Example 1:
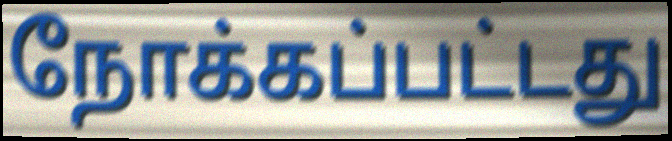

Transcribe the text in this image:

நோக்கப்பட்டது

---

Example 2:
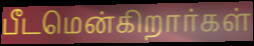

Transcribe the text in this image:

பீடமென்கிறார்கள்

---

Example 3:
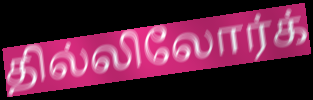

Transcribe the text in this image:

தில்லிலோர்க்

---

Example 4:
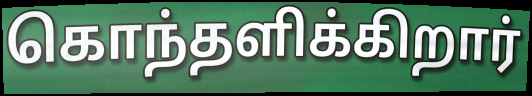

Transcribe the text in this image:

கொந்தளிக்கிறார்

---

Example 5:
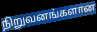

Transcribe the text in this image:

நிறுவனங்களான